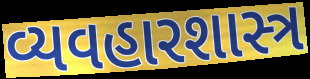
વ્યવહારશાસ્ત્ર